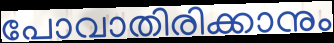
പോവാതിരിക്കാനും